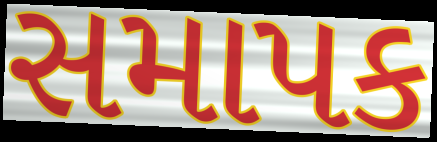
સમાપક